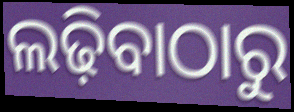
ଲଢ଼ିବାଠାରୁ